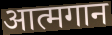
आत्मगान